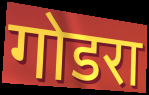
गोडरा